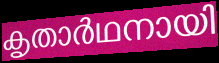
കൃതാർഥനായി